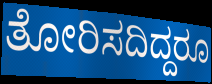
ತೋರಿಸದಿದ್ದರೂ